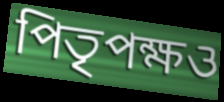
পিতৃপক্ষও